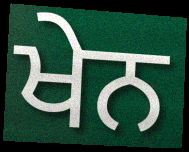
ਖੇਨ